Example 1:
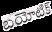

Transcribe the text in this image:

బయోటిక్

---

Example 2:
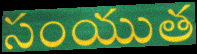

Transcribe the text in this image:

సంయుత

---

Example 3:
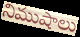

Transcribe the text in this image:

నిముషాలు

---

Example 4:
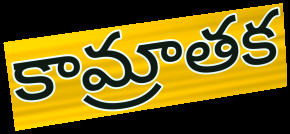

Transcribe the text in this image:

కామ్రాతక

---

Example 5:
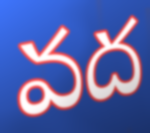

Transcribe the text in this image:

వద